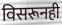
विसरूनही